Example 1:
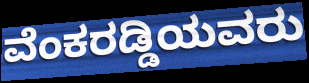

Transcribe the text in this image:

ವೆಂಕರಡ್ಡಿಯವರು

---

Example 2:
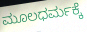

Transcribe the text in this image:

ಮೂಲಧರ್ಮಕ್ಕೆ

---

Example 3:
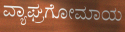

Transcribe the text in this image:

ವ್ಯಾಘ್ರಗೋಮಾಯ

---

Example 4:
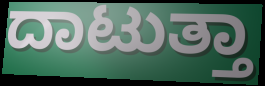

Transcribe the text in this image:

ದಾಟುತ್ತಾ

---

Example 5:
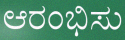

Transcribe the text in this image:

ಆರಂಭಿಸು